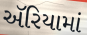
ઍરિયામાં